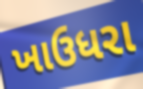
ખાઉધરા